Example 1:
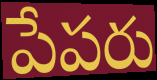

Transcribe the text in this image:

పేపరు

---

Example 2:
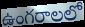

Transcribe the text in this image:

ఉంగరాలలో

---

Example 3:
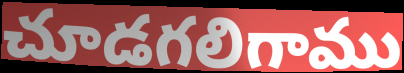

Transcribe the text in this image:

చూడగలిగాము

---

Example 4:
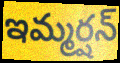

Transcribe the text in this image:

ఇమ్మర్షన్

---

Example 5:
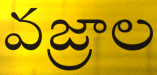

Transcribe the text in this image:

వజ్రాల